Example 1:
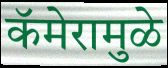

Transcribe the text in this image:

कॅमेरामुळे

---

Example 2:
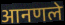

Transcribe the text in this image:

आनणले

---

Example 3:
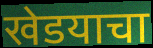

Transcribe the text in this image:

खेडयाचा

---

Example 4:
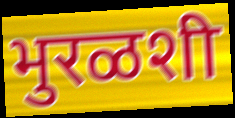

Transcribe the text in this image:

भुरळशी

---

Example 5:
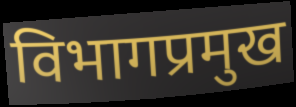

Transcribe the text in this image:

विभागप्रमुख